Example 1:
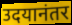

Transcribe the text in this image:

उदयानंतर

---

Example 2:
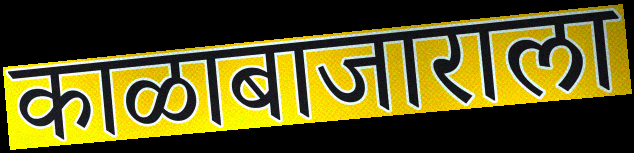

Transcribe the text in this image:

काळाबाजाराला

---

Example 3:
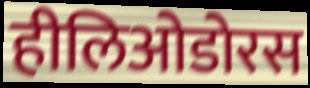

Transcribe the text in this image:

हीलिओडोरस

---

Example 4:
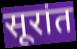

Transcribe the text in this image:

सूरांत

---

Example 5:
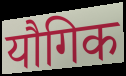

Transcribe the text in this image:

यौगिक